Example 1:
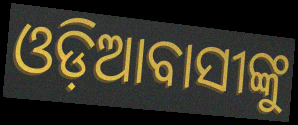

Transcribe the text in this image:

ଓଡ଼ିଆବାସୀଙ୍କୁ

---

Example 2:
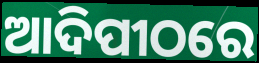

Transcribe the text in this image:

ଆଦିପୀଠରେ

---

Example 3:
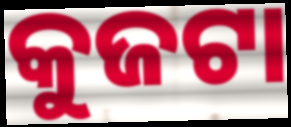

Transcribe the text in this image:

କୁଜଟା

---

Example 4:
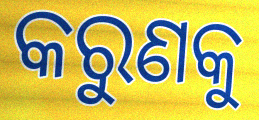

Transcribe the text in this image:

କରୁଣକୁ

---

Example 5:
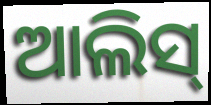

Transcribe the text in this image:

ଆଲିସ୍